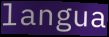
langua